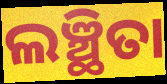
ଲଞ୍ଛିତା